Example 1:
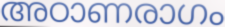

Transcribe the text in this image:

അഠാണരാഗം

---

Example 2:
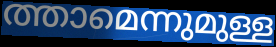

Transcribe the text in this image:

ത്താമെന്നുമുള്ള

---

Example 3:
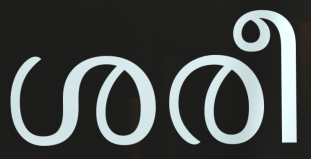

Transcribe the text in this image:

ശരീ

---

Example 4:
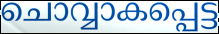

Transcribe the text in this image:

ചൊവ്വാകപ്പെട്ട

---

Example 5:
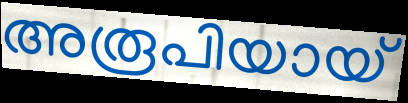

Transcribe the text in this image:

അരൂപിയായ്